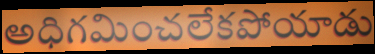
అధిగమించలేకపోయాడు